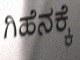
ಗಿಹೆನಕ್ಕೆ